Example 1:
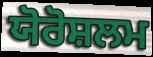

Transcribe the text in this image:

ਯੋਰੋਸ਼ਲਮ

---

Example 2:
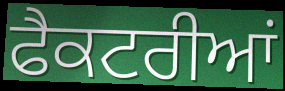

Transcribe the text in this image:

ਫੈਕਟਰੀਆਂ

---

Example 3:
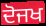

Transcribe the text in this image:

ਦੋਜਖ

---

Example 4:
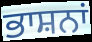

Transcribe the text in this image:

ਭਾਸ਼ਨਾਂ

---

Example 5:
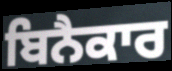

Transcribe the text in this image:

ਬਿਨੈਕਾਰ